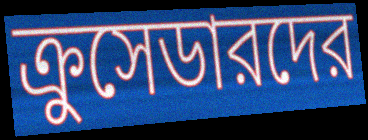
ক্রুসেডারদের